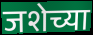
जशेच्या